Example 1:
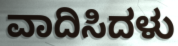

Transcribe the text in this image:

ವಾದಿಸಿದಳು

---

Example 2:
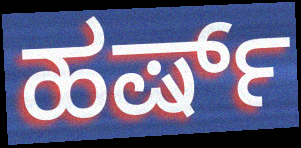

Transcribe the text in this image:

ಹರ್ಷ್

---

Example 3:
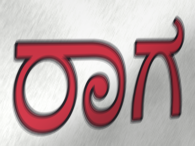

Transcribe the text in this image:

ರಾಗ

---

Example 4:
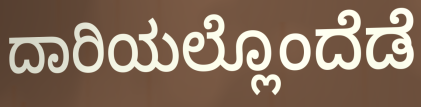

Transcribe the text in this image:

ದಾರಿಯಲ್ಲೊಂದೆಡೆ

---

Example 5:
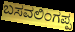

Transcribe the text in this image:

ಬಸವಲಿಂಗಪ್ಪ